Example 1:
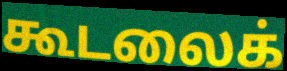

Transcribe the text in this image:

கூடலைக்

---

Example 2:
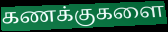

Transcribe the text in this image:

கணக்குகளை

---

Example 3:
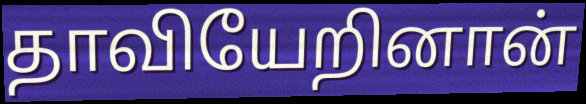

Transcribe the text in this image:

தாவியேறினான்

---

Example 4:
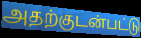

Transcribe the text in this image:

அதற்குடன்பட்டு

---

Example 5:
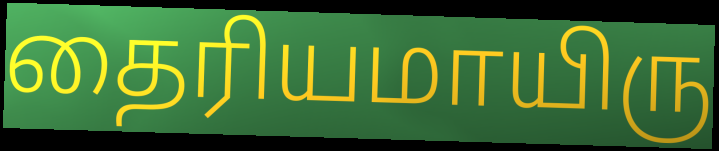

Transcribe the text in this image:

தைரியமாயிரு